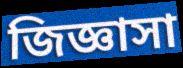
জিজ্ঞাসা